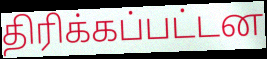
திரிக்கப்பட்டன